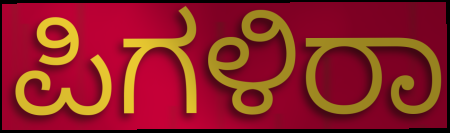
ಪಿಗಳಿರಾ